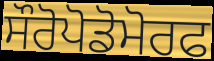
ਸੌਰੋਪੋਡੋਮੋਰਫ